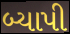
બ્યાપી